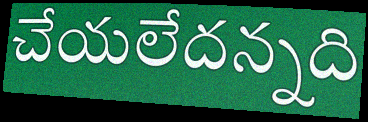
చేయలేదన్నది